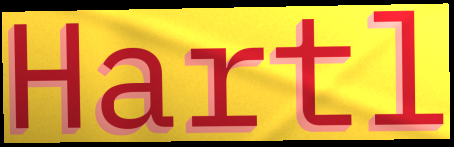
Hartl